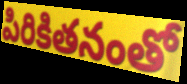
పిరికితనంతో